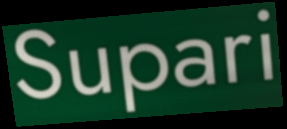
Supari